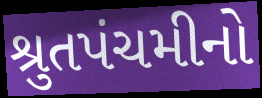
શ્રુતપંચમીનો